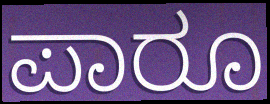
ಪಾರೂ